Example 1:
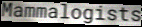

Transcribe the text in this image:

Mammalogists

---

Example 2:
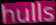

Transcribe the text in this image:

hulls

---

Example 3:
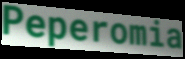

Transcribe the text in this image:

Peperomia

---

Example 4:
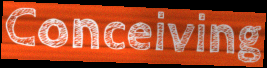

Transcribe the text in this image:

Conceiving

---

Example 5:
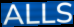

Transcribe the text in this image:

ALLS